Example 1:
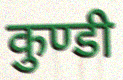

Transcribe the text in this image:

कुण्डी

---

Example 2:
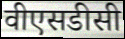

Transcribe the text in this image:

वीएसडीसी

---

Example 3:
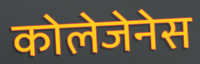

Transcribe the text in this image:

कोलेजेनेस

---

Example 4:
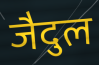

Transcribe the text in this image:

जैदुल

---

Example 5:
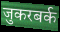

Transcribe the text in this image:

जुकरबर्क